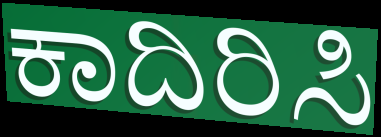
ಕಾದಿರಿಸಿ